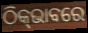
ଠିକ୍‌ଭାବରେ